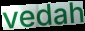
vedah